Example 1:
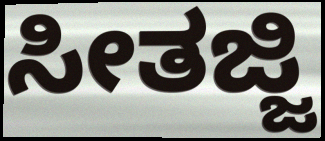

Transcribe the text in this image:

ಸೀತಜ್ಜಿ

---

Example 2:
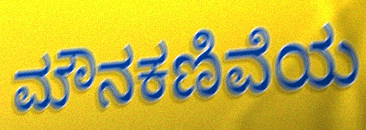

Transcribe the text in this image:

ಮೌನಕಣಿವೆಯ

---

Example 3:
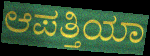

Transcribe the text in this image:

ಆಪತ್ತಿಯಾ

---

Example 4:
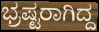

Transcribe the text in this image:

ಭ್ರಷ್ಟರಾಗಿದ್ದ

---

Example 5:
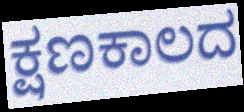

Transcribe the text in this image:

ಕ್ಷಣಕಾಲದ